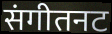
संगीतनट